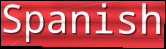
Spanish